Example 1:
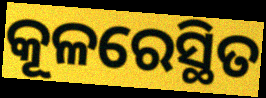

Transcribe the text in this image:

କୂଳରେସ୍ଥିତ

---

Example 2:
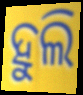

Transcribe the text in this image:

ହୁଲି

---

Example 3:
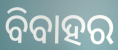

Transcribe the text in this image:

ବିବାହର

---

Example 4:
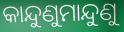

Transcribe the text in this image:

କାନ୍ଦୁଣୁମାନ୍ଦୁଣୁ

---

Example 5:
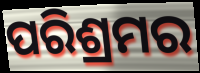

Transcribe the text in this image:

ପରିଶ୍ରମର